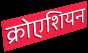
क्रोएशियन